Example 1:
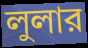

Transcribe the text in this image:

লুলার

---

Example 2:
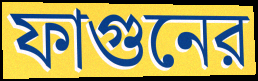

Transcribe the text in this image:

ফাগুনের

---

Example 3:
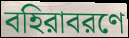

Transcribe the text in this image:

বহিরাবরণে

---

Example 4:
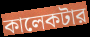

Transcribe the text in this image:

কালেকটার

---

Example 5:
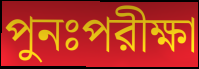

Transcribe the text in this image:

পুনঃপরীক্ষা